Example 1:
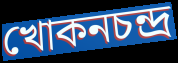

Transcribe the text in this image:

খোকনচন্দ্র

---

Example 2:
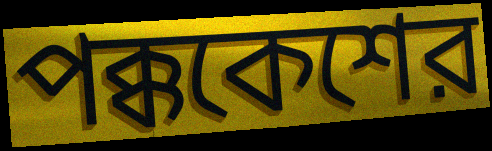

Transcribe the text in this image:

পক্ককেশের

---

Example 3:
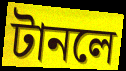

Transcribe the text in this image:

টানলে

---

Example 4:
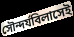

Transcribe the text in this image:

সৌন্দর্যবিলাসেই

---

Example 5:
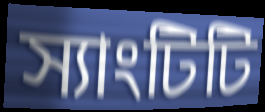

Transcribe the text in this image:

স্যাংটিটি